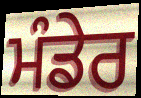
ਮੰਡੇਰ